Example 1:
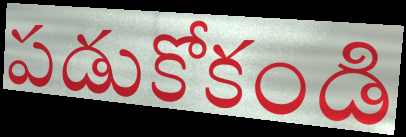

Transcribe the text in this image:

పడుకోకండి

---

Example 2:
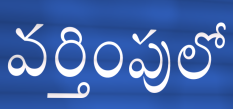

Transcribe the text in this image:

వర్తింపులో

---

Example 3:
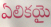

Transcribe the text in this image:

ఏలికయై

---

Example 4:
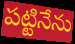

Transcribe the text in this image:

పట్టినేను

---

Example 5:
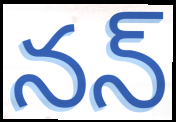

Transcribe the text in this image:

నన్